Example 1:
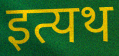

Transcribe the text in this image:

इत्यथ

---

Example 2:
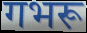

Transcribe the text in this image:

गभरू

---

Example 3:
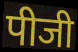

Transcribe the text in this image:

पीजी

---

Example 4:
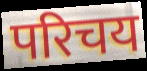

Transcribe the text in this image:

परिचय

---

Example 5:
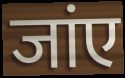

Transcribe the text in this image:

जांए